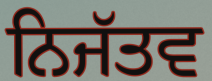
ਨਿਜੱਤਵ